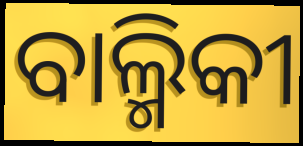
ବାଲ୍ମିକୀ